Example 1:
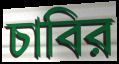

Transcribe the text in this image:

চাবির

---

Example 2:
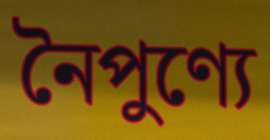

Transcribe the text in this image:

নৈপুণ্যে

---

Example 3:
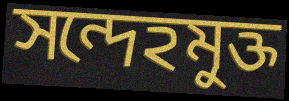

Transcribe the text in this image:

সন্দেহমুক্ত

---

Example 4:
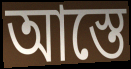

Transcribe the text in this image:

আস্তে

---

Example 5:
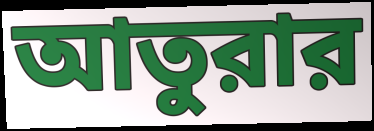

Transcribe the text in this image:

আতুরার